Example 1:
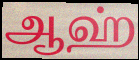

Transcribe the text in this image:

ஆஹ்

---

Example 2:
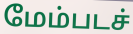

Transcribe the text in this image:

மேம்படச்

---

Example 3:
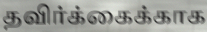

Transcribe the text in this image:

தவிர்க்கைக்காக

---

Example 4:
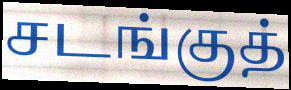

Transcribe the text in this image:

சடங்குத்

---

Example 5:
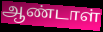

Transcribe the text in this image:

ஆண்டாள்